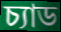
চ্যাড